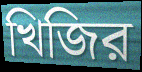
খিজির